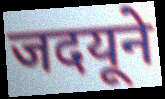
जदयूने